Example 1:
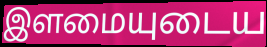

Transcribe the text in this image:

இளமையுடைய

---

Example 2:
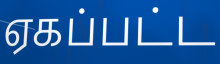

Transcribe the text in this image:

ஏகப்பட்ட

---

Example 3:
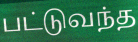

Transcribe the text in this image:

பட்டுவந்த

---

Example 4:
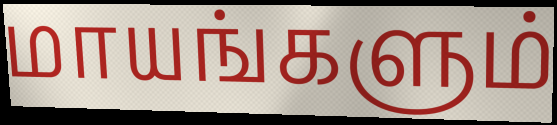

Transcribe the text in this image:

மாயங்களும்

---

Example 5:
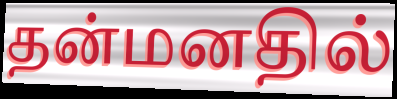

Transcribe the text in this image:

தன்மனதில்